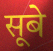
सूबे